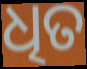
ଧିତ